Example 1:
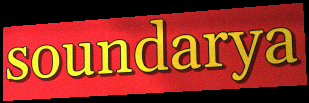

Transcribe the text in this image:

soundarya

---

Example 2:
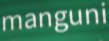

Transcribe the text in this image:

manguni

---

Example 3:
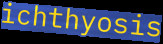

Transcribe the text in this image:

ichthyosis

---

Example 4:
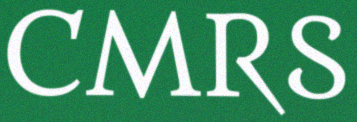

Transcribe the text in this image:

CMRS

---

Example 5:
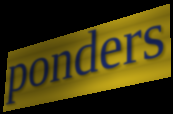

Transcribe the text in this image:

ponders